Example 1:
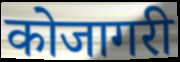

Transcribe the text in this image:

कोजागरी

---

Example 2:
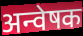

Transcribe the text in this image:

अन्वेषक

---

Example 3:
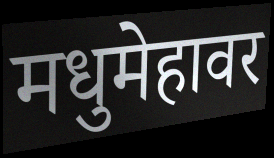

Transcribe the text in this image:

मधुमेहावर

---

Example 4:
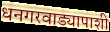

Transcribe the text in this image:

धनगरवाड्यापाशी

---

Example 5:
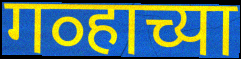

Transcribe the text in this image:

गव्हाच्या